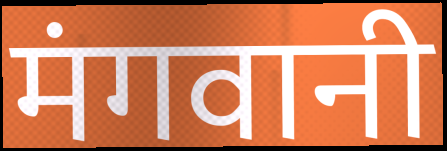
मंगवानी